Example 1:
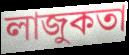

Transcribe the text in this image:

লাজুকতা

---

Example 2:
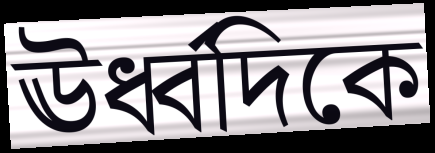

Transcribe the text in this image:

ঊর্ধ্বদিকে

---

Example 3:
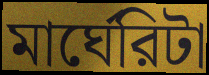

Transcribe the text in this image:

মার্ঘেরিটা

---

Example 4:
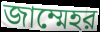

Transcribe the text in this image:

জাম্মেহর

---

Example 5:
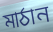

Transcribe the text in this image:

মাঠান